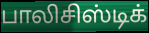
பாலிசிஸ்டிக்